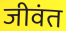
जीवंत